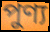
পুণ্য